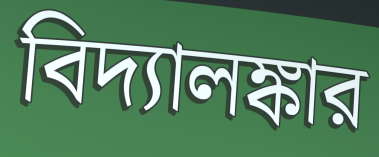
বিদ্যালঙ্কার